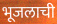
भूजलाची